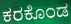
ಕರಕೊಂಡ